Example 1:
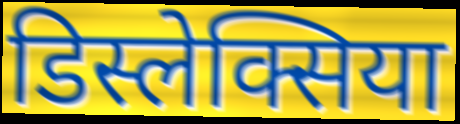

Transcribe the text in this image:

डिस्लेक्सिया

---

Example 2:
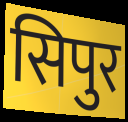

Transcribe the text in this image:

सिपुर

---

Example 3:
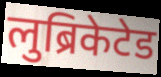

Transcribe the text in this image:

लुब्रिकेटेड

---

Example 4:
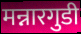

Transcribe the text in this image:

मन्नारगुडी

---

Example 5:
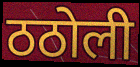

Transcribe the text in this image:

ठठोली